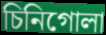
চিনিগোলা